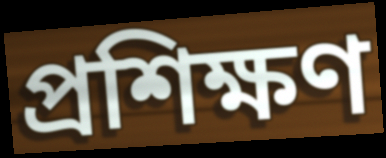
প্ৰশিক্ষণ